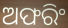
ଅଫରିଂ